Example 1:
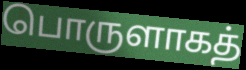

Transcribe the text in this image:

பொருளாகத்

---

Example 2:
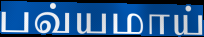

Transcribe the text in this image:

பவ்யமாய்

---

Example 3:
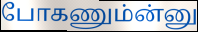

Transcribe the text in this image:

போகணும்ன்னு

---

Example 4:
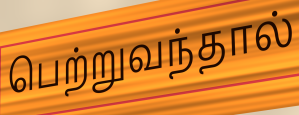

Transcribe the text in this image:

பெற்றுவந்தால்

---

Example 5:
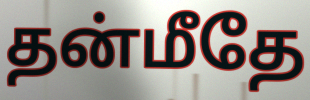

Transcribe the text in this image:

தன்மீதே